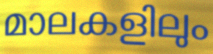
മാലകളിലും